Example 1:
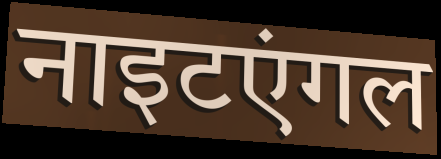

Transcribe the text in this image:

नाइटएंगल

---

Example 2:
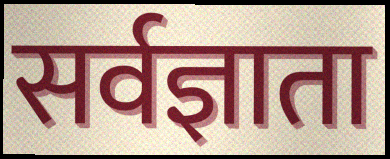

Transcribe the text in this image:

सर्वज्ञाता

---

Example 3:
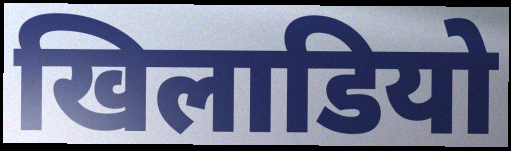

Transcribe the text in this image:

खिलाडियो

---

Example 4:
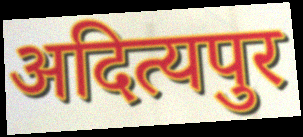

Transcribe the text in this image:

अदित्यपुर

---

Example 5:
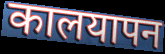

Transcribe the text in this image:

कालयापन